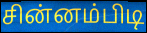
சின்னம்பிடி